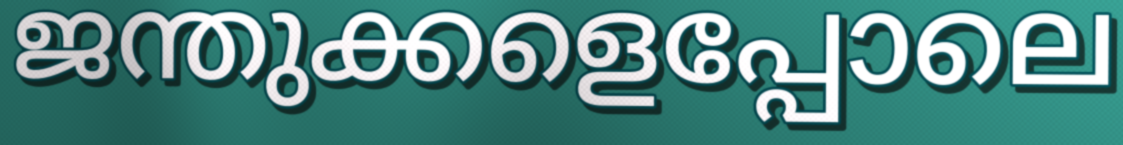
ജന്തുക്കളെപ്പോലെ